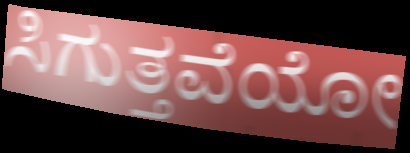
ಸಿಗುತ್ತವೆಯೋ